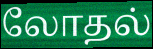
லோதல்